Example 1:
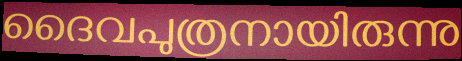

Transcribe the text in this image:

ദൈവപുത്രനായിരുന്നു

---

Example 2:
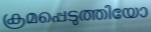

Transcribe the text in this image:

ക്രമപ്പെടുത്തിയോ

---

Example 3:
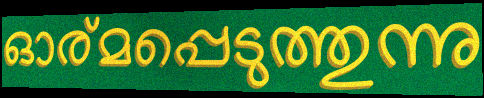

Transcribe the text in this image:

ഓര്മപ്പെടുത്തുന്നു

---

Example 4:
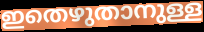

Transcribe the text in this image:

ഇതെഴുതാനുള്ള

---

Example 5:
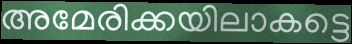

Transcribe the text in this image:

അമേരിക്കയിലാകട്ടെ